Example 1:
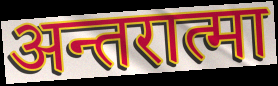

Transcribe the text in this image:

अन्तरात्मा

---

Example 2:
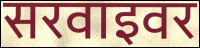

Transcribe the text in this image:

सरवाइवर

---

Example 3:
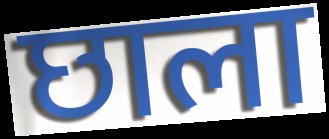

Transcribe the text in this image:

छाला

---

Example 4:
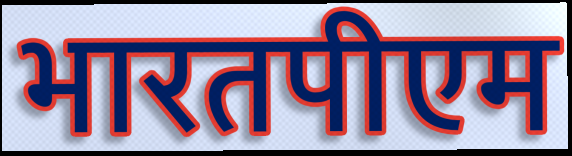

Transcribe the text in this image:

भारतपीएम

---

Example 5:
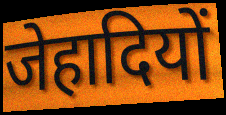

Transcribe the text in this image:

जेहादियों